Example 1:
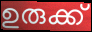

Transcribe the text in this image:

ഉരുക്ക്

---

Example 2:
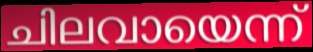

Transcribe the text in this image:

ചിലവായെന്ന്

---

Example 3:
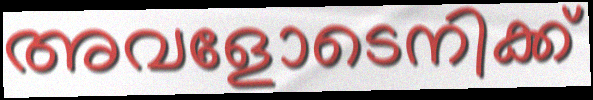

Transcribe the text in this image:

അവളോടെനിക്ക്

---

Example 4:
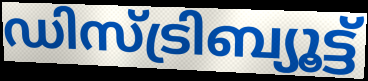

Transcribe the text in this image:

ഡിസ്ട്രിബ്യൂട്ട്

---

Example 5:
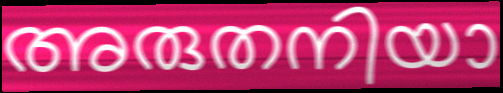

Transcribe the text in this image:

അരുതനിയാ